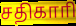
சதிகாரி